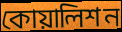
কোয়ালিশন